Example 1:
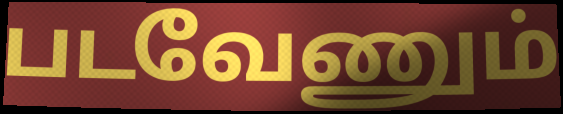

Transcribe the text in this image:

படவேணும்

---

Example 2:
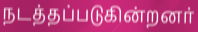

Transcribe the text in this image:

நடத்தப்படுகின்றனர்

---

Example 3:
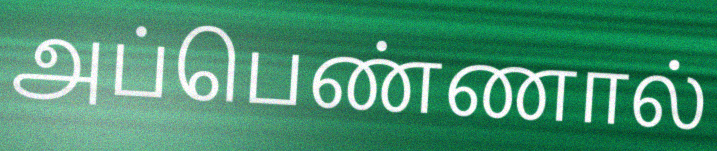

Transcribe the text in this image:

அப்பெண்ணால்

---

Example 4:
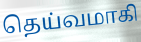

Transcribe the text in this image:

தெய்வமாகி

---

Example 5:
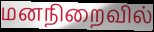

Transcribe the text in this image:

மனநிறைவில்